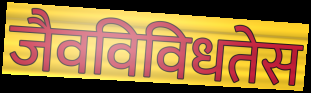
जैवविविधतेस